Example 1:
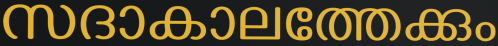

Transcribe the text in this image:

സദാകാലത്തേക്കും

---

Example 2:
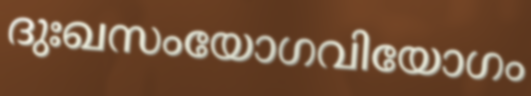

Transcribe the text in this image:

ദുഃഖസംയോഗവിയോഗം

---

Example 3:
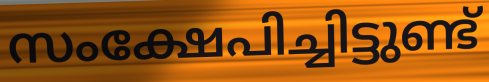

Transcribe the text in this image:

സംക്ഷേപിച്ചിട്ടുണ്ട്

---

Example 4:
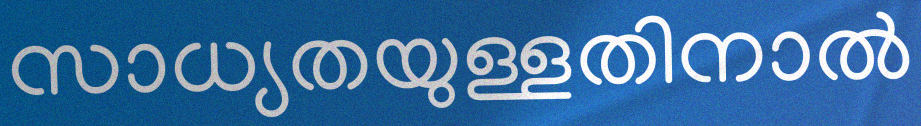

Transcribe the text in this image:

സാധ്യതയുള്ളതിനാൽ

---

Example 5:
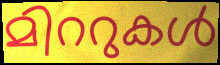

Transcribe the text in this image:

മിററുകൾ